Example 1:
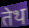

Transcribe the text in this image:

तेथ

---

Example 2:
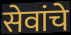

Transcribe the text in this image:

सेवांचे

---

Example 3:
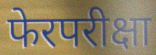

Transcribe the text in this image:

फेरपरीक्षा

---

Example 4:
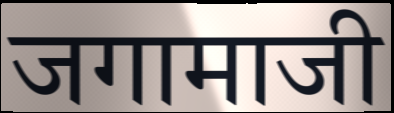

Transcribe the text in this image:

जगामाजी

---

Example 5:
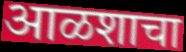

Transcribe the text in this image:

आळशाचा